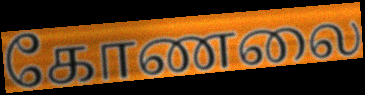
கோணலை